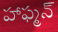
హాఫ్మన్